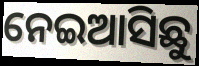
ନେଇଆସିଛୁ